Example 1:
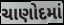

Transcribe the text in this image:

ચાણોદમાં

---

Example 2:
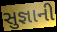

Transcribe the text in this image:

સુજ્ઞાની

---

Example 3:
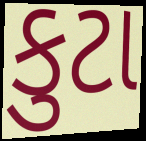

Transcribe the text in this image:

કુટા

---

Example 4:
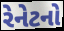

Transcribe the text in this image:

રેનેટનો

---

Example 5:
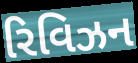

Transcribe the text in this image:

રિવિઝન